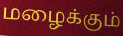
மழைக்கும்